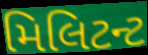
મિલિટન્ટ